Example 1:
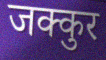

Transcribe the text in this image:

जक्कुर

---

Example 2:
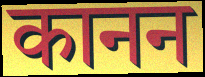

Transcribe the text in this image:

कानन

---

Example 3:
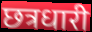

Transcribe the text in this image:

छत्रधारी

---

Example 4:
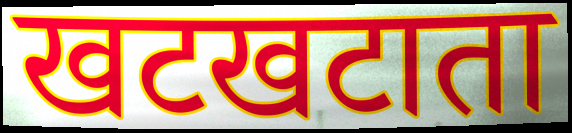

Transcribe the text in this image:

खटखटाता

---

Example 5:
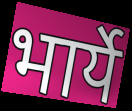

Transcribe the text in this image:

भार्ये